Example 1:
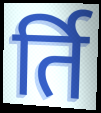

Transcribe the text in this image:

र्ति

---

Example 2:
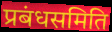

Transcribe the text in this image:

प्रबंधसमिति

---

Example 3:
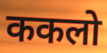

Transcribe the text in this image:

ककलो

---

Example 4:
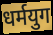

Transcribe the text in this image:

धर्मयुग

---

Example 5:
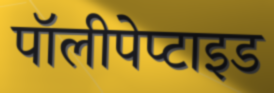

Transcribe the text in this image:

पॉलीपेप्टाइड